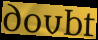
doubt